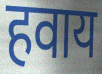
हवाय